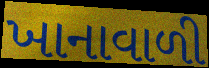
ખાનાવાળી